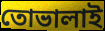
তোভালাই